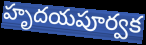
హృదయపూర్వక